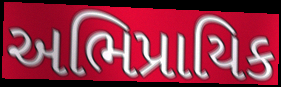
અભિપ્રાયિક